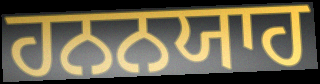
ਹਨਨਯਾਹ